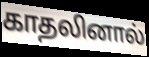
காதலினால்